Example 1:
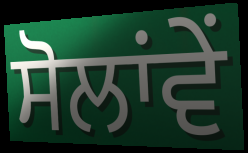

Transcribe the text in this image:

ਸੋਲਾਂਵੇਂ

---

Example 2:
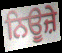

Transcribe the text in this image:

ਨਿਊਜ਼ੇ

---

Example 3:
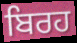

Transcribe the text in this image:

ਬਿਰਹ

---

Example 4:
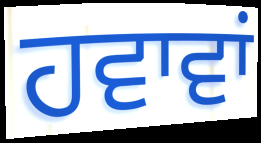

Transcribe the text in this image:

ਹਵਾਵਾਂ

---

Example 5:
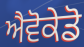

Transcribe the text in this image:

ਐਵੋਕੇਡੋ